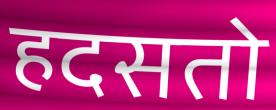
हदसतो